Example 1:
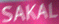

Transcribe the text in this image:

SAKAL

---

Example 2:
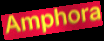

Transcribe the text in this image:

Amphora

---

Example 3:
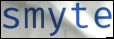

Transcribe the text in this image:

smyte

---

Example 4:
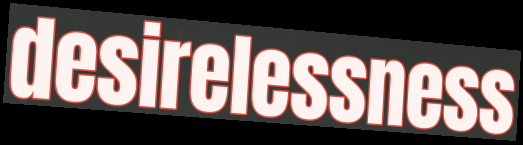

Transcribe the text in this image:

desirelessness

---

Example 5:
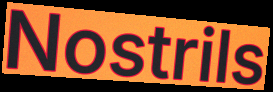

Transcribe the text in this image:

Nostrils